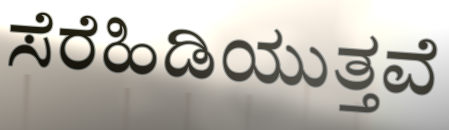
ಸೆರೆಹಿಡಿಯುತ್ತವೆ